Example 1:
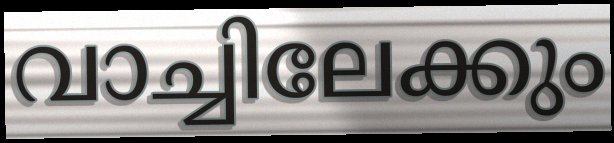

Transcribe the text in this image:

വാച്ചിലേക്കും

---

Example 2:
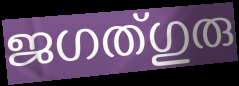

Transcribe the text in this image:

ജഗത്ഗുരു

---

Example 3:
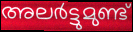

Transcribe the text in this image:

അലർട്ടുമുണ്ട്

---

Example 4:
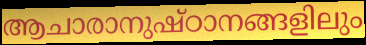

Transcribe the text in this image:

ആചാരാനുഷ്ഠാനങ്ങളിലും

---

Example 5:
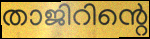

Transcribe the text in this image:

താജിറിന്റെ